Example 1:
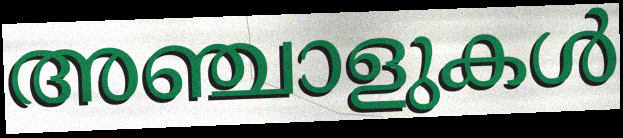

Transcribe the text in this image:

അഞ്ചാളുകൾ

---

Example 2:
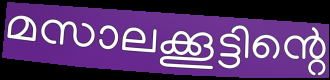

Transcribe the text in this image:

മസാലക്കൂട്ടിന്റെ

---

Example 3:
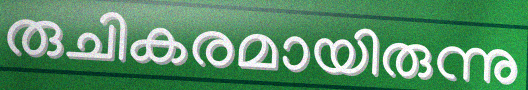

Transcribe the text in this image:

രുചികരമായിരുന്നു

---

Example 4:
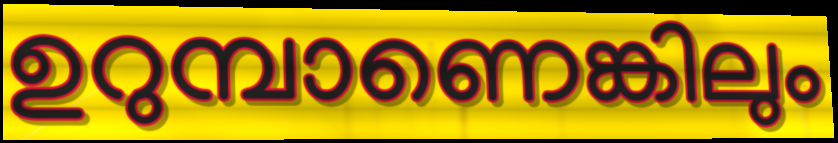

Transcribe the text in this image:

ഉറുമ്പാണെങ്കിലും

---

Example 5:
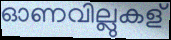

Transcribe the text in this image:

ഓണവില്ലുകള്